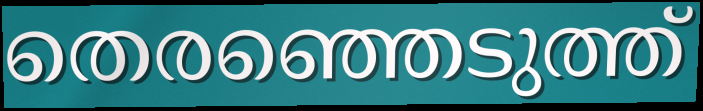
തെരഞ്ഞെടുത്ത്